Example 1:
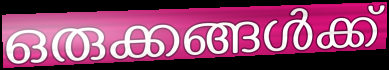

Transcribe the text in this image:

ഒരുക്കങ്ങൾക്ക്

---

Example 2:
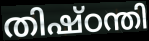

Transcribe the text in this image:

തിഷ്ഠന്തി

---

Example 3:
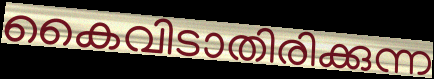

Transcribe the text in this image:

കൈവിടാതിരിക്കുന്ന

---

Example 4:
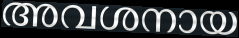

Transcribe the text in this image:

അവശനായ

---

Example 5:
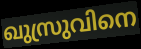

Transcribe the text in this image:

ഖുസ്രുവിനെ